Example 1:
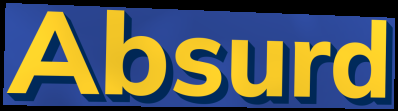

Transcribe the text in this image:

Absurd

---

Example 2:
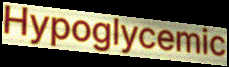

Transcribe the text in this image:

Hypoglycemic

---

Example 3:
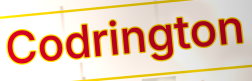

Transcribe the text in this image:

Codrington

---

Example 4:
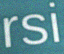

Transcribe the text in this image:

rsi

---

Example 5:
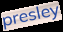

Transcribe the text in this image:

presley